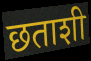
छताशी